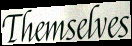
Themselves